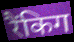
रैंकिग